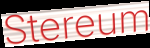
Stereum